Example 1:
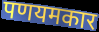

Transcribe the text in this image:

पणयमकार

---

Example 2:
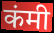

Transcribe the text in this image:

कंमी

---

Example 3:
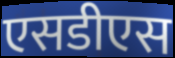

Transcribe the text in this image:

एसडीएस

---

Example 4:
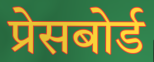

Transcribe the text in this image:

प्रेसबोर्ड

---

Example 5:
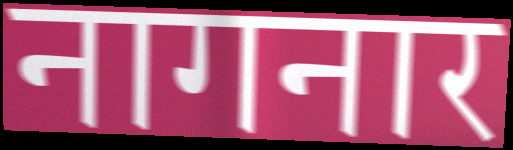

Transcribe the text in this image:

नागनार